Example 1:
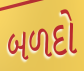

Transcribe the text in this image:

બળદો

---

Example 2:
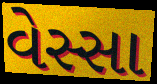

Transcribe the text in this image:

વેસ્સા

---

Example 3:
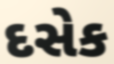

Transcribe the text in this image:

દસેક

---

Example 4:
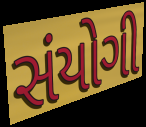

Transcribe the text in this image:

સંયોગી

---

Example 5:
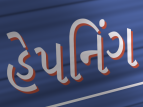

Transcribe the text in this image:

હેપનિંગ